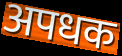
अपधक